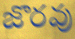
జొరవు